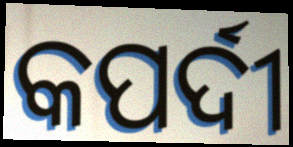
କପର୍ଦୀ